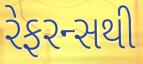
રેફરન્સથી